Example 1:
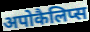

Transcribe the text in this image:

अपोकैलिप्स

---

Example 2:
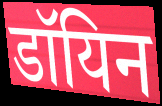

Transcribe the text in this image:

डॉयिन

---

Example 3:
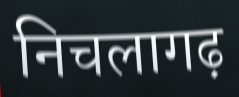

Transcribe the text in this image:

निचलागढ़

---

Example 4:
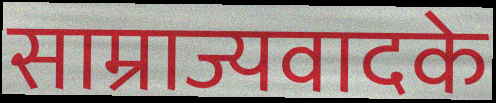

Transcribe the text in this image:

साम्राज्यवादके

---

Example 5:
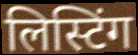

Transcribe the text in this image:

लिस्‍टिंग